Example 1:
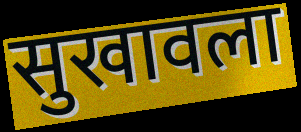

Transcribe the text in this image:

सुखावला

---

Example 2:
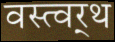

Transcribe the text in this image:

वस्त्वर्थ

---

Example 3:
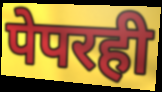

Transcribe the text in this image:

पेपरही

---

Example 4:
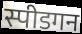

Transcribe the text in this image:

स्पीडगन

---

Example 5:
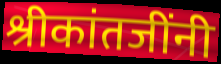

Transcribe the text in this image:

श्रीकांतजींनी